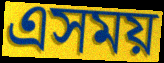
এসময়